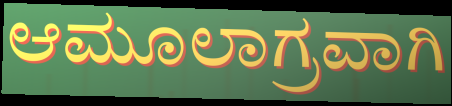
ಆಮೂಲಾಗ್ರವಾಗಿ